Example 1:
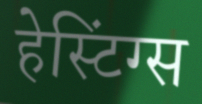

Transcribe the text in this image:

हेस्टिंग्स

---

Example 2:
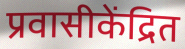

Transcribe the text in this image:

प्रवासीकेंद्रित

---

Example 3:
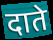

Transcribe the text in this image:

दाते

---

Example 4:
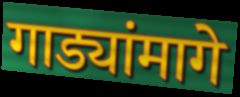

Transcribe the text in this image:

गाड्यांमागे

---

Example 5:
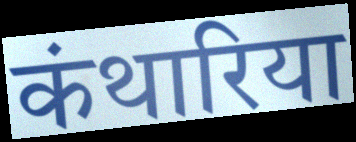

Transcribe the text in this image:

कंथारिया